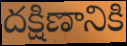
దక్షిణానికి